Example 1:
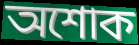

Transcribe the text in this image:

অশোক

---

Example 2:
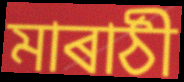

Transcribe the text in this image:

মাৰাঠী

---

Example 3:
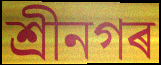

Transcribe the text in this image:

শ্ৰীনগৰ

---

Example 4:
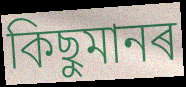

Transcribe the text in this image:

কিছুমানৰ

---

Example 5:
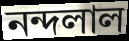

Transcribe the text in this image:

নন্দলাল